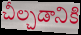
చీల్చడానికి